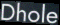
Dhole